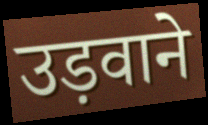
उड़वाने